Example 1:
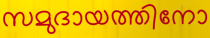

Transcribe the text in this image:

സമുദായത്തിനോ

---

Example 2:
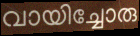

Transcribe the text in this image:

വായിച്ചോരു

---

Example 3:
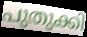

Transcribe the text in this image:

പുതുക്കി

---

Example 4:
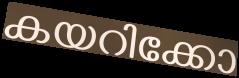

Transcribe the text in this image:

കയറിക്കോ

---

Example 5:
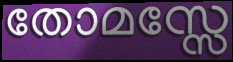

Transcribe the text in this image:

തോമസ്സേ